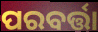
ପରବର୍ତ୍ତା